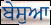
ਬੇਸੁਆ